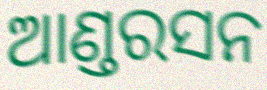
ଆଣ୍ଡରସନ